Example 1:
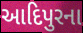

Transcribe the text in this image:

આદિપુરના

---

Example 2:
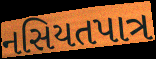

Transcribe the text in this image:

નસિયતપાત્ર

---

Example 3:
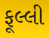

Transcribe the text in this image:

ફૂલ્લી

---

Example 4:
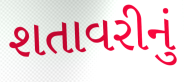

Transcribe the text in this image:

શતાવરીનું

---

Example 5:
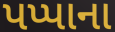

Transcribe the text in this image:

પપ્પાના